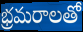
భ్రమరాలతో